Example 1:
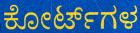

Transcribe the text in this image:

ಕೋರ್ಟ್‌ಗಳ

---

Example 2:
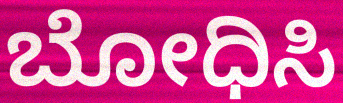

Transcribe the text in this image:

ಬೋಧಿಸಿ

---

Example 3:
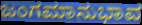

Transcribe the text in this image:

ಜಂಗಮಾನುಭಾವ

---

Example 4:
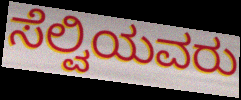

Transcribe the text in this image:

ಸೆಲ್ವಿಯವರು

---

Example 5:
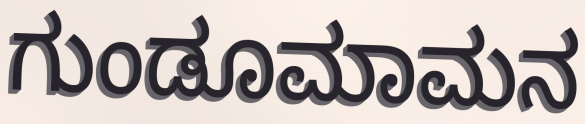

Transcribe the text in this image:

ಗುಂಡೂಮಾಮನ